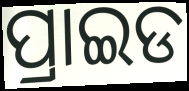
ପ୍ରାଇଡ